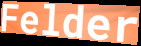
Felder